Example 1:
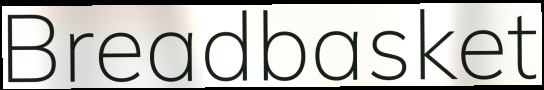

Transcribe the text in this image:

Breadbasket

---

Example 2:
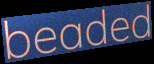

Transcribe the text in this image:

beaded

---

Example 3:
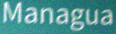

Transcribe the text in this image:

Managua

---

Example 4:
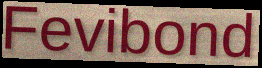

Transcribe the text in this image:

Fevibond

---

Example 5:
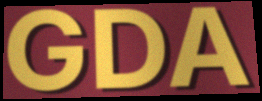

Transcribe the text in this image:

GDA